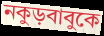
নকুড়বাবুকে